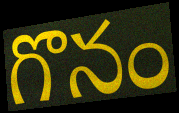
గొనం